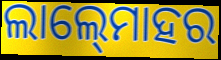
ଲାଲ୍‍ମୋହର